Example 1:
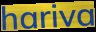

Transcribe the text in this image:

hariva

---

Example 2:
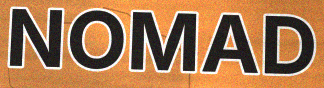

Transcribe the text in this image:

NOMAD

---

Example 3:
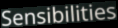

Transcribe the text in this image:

Sensibilities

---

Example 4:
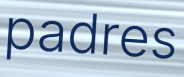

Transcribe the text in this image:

padres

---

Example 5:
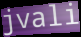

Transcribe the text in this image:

jvali